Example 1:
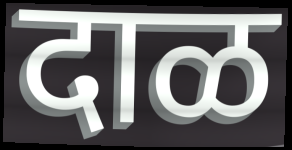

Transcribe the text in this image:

दाळ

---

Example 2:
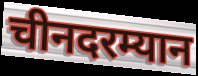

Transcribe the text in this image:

चीनदरम्यान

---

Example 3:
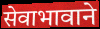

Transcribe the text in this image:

सेवाभावाने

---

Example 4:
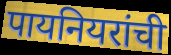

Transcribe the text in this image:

पायनियरांची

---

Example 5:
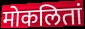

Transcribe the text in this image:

मोकलितां